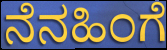
ನೆನಹಿಂಗೆ